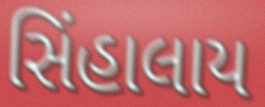
સિંહાલાય